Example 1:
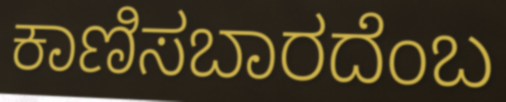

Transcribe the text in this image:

ಕಾಣಿಸಬಾರದೆಂಬ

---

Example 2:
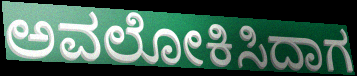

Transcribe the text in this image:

ಅವಲೋಕಿಸಿದಾಗ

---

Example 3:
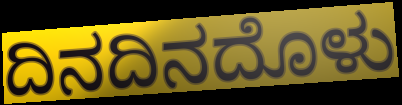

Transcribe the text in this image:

ದಿನದಿನದೊಳು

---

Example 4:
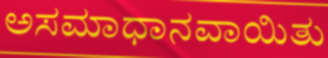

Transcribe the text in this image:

ಅಸಮಾಧಾನವಾಯಿತು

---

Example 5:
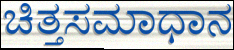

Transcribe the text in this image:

ಚಿತ್ತಸಮಾಧಾನ